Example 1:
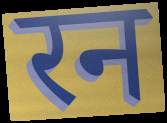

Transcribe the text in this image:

रन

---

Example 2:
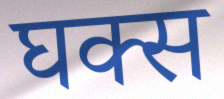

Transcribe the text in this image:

घक्स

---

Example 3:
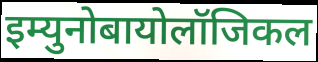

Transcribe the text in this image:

इम्युनोबायोलॉजिकल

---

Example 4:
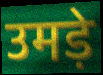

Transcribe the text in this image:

उमड़े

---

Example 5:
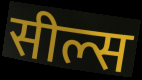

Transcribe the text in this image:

सील्स